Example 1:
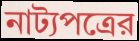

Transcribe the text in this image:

নাট্যপত্রের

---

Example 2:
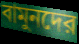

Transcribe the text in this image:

বামুনদের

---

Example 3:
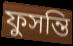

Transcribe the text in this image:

ফুসন্তি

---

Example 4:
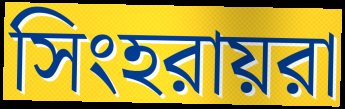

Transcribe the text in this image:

সিংহরায়রা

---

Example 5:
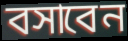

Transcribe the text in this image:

বসাবেন